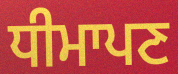
ਧੀਮਾਪਣ